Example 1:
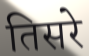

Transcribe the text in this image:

तिसरे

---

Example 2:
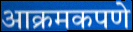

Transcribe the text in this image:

आक्रमकपणे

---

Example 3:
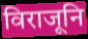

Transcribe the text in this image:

विराजूनि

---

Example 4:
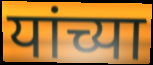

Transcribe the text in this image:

यांच्या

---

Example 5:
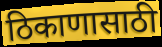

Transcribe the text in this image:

ठिकाणासाठी